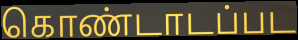
கொண்டாடப்பட